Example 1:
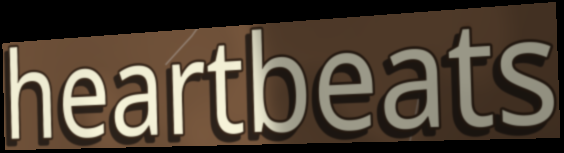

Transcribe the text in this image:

heartbeats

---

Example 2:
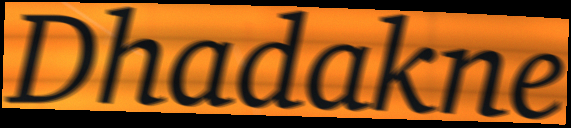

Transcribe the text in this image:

Dhadakne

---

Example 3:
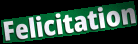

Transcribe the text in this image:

Felicitation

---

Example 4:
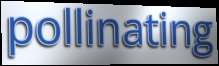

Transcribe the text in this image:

pollinating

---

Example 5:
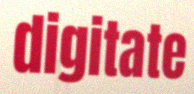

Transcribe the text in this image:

digitate